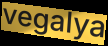
vegalya